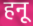
हनू